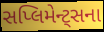
સપ્લિમેન્ટ્સના